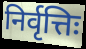
निर्वृत्तिः